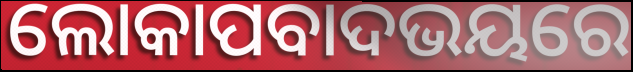
ଲୋକାପବାଦଭୟରେ